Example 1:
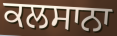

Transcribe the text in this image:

ਕਲਸਾਨਾ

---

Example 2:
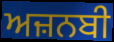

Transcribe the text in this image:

ਅਜ਼ਨਬੀ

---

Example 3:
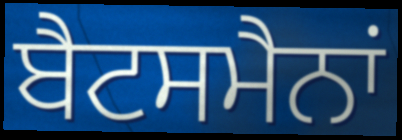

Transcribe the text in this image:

ਬੈਟਸਮੈਨਾਂ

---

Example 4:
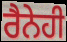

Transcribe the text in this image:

ਰੈਨੇਹੀ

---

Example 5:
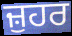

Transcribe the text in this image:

ਜ਼ੁਹਰ